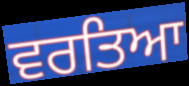
ਵਰਤਿਆ